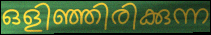
ഒളിഞ്ഞിരിക്കുന്ന